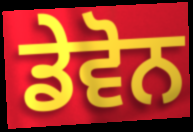
ਡੇਵੋਨ